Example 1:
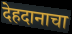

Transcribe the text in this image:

देहदानाचा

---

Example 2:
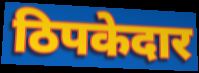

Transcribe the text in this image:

ठिपकेदार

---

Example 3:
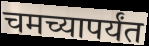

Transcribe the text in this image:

चमच्यापर्यंत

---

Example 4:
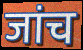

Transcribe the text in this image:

जांच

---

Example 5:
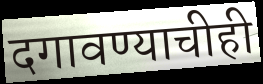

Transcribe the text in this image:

दगावण्याचीही